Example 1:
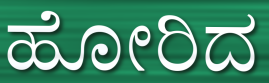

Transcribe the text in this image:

ಹೋರಿದ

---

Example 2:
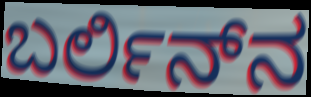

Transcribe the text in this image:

ಬರ್ಲಿನ್‍ನ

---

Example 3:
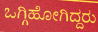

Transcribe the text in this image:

ಒಗ್ಗಿಹೋಗಿದ್ದರು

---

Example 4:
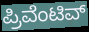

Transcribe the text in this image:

ಪ್ರಿವೆಂಟಿವ್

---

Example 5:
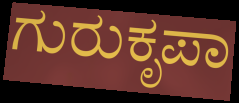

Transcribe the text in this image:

ಗುರುಕೃಪಾ